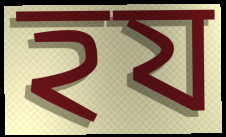
হয